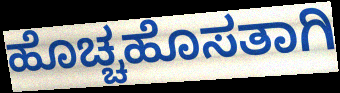
ಹೊಚ್ಚಹೊಸತಾಗಿ